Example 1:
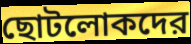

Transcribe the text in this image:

ছোটলোকদের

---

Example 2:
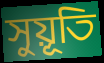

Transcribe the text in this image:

সুয়ূতি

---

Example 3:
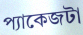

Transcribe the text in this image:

প্যাকেজটা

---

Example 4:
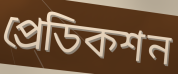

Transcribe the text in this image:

প্রেডিকশন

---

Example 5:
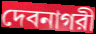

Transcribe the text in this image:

দেবনাগরী